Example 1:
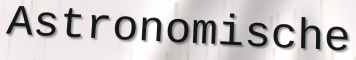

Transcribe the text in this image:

Astronomische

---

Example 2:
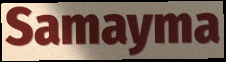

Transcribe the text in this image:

Samayma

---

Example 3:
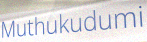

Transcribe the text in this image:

Muthukudumi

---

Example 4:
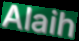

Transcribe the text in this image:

Alaih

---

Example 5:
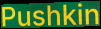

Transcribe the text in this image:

Pushkin